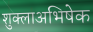
शुक्लाअभिषेक